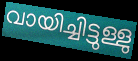
വായിച്ചിട്ടുള്ളു